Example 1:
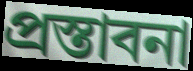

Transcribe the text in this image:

প্রস্তাবনা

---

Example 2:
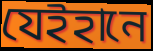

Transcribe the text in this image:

যেইহানে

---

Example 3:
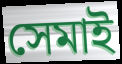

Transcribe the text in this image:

সেমাই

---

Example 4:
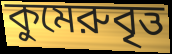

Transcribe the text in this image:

কুমেরুবৃত্ত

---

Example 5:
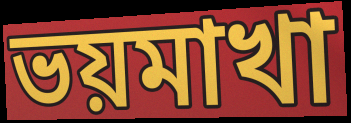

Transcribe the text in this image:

ভয়মাখা